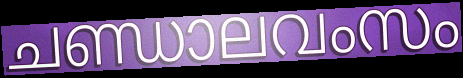
ചണ്ഡാലവംസം